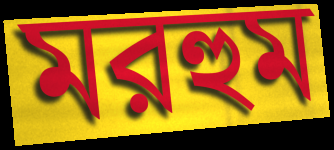
মরহুম